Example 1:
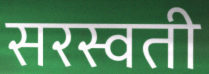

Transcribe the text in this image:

सरस्‍वती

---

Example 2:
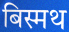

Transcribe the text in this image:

बिस्मथ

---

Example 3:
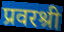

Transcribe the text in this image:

प्रवरश्री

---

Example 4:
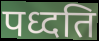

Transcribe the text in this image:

पध्दति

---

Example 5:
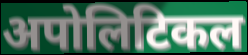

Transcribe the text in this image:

अपोलिटिकल